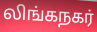
லிங்கநகர்